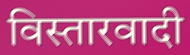
विस्तारवादी